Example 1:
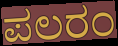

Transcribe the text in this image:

ಪಲರಂ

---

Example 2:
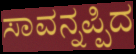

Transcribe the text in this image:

ಸಾವನ್ನಪ್ಪಿದ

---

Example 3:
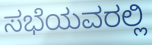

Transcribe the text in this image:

ಸಭೆಯವರಲ್ಲಿ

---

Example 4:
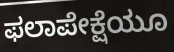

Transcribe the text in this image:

ಫಲಾಪೇಕ್ಷೆಯೂ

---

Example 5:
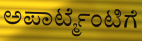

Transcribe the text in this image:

ಅಪಾರ್ಟ್ಮೆಂಟಿಗೆ